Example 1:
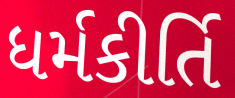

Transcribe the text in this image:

ધર્મકીર્તિ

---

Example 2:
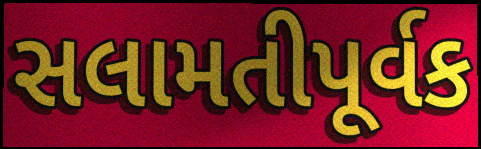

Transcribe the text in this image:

સલામતીપૂર્વક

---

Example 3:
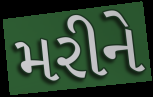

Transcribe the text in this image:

મરીને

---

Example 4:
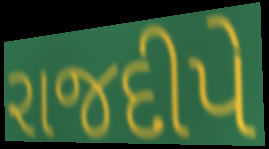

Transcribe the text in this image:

રાજદીપે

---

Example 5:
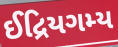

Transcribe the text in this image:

ઈદ્રિયગમ્ય